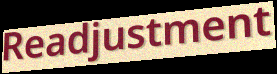
Readjustment